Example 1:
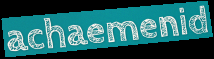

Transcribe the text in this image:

achaemenid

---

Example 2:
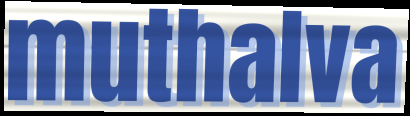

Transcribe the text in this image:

muthalva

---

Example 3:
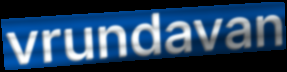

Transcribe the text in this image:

vrundavan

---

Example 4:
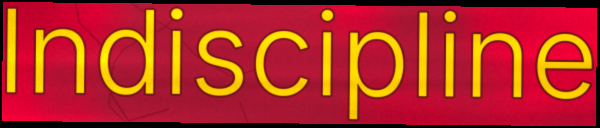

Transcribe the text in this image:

Indiscipline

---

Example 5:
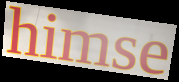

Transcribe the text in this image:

himse